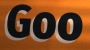
Goo